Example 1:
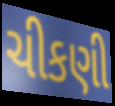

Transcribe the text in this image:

ચીકણી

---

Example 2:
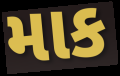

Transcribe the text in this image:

માક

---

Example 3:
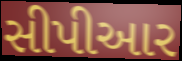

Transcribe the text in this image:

સીપીઆર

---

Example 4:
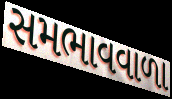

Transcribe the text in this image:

સમભાવવાળા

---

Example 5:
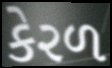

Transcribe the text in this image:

કેરળ